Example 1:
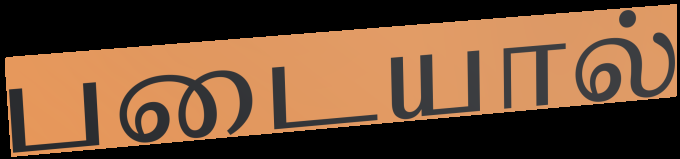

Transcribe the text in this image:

படையால்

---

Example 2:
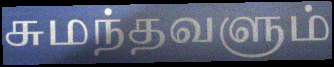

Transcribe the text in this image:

சுமந்தவளும்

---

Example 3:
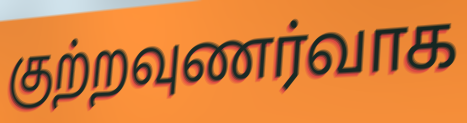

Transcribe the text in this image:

குற்றவுணர்வாக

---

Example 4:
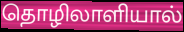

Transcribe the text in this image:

தொழிலாளியால்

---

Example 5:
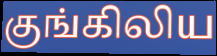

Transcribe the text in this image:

குங்கிலிய